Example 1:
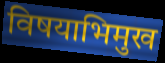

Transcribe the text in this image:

विषयाभिमुख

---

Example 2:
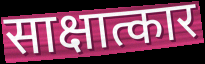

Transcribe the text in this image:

साक्षात्कार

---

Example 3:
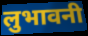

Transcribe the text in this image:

लुभावनी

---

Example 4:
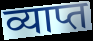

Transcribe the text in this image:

व्याप्त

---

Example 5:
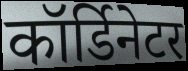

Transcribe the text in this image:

कॉर्डिनेटर